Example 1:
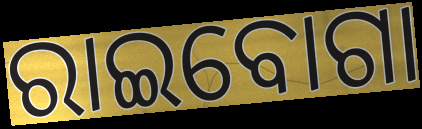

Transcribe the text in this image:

ରାଇବୋଗା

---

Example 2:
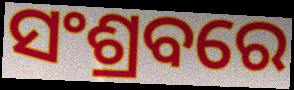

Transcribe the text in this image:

ସଂଶ୍ରବରେ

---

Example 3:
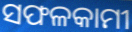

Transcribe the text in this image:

ସଫଳକାମୀ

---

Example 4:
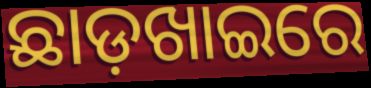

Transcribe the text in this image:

ଛାଡ଼ଖାଇରେ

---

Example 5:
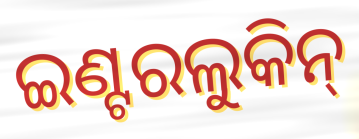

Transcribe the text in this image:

ଇଣ୍ଟରଲୁକିନ୍